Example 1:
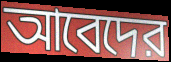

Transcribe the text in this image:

আবেদের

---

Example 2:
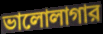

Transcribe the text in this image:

ভালোলাগার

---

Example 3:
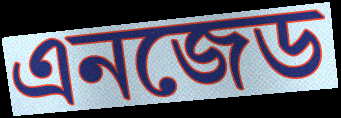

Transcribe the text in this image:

এনজেড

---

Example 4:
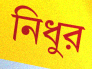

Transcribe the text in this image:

নিধুর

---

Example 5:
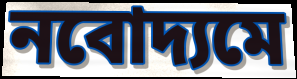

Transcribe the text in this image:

নবোদ্যমে